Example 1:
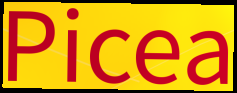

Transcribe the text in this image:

Picea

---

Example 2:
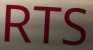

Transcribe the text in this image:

RTS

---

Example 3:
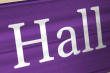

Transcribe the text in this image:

Hall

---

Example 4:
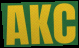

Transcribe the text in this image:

AKC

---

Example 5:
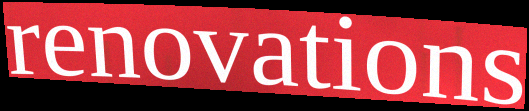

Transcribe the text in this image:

renovations